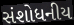
સંશોધનીય